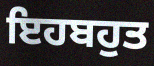
ਇਹਬਹੁਤ